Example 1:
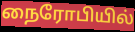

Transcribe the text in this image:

நைரோபியில்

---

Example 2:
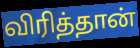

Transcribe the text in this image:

விரித்தான்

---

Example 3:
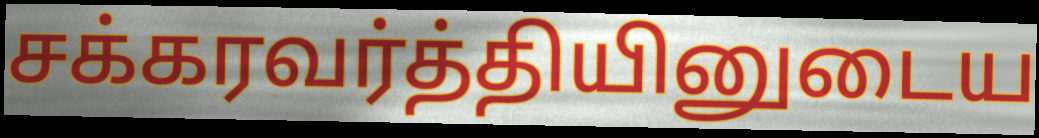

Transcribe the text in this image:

சக்கரவர்த்தியினுடைய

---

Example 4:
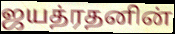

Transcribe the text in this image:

ஜயத்ரதனின்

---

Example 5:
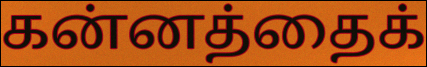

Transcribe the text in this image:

கன்னத்தைக்